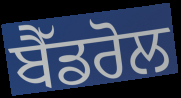
ਬੈੱਡਰੋਲ